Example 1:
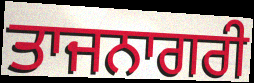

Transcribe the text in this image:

ਤਾਜਨਾਗਰੀ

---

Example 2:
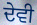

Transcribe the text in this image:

ਦੇਵੀ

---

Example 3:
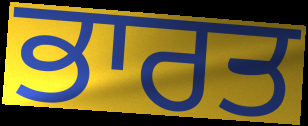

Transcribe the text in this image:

ਭਾਰਤ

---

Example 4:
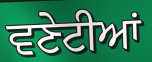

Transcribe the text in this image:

ਵਣੇਟੀਆਂ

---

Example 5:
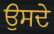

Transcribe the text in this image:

ਉਸਦੇ